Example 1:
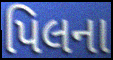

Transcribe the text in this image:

પિલના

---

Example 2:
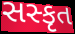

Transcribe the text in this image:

સસ્કૃત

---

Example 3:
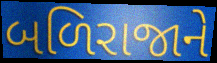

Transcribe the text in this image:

બળિરાજાને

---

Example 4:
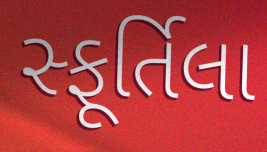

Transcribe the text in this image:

સ્ફૂર્તિલા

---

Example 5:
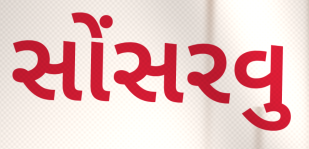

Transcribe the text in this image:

સોંસરવુ